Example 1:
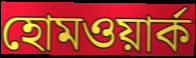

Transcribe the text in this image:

হোমওয়ার্ক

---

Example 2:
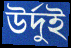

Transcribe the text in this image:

উর্দুই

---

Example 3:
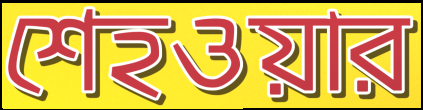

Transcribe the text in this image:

শেহওয়ার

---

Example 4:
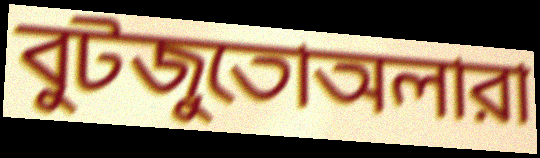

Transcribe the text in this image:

বুটজুতোঅলারা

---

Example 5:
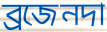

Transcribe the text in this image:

ব্রজেনদা